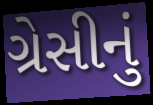
ગ્રેસીનું